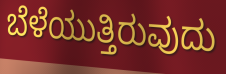
ಬೆಳೆಯುತ್ತಿರುವುದು